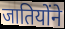
जातियोंने